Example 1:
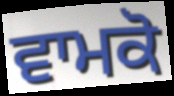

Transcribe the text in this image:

ਵਾਮਕੋ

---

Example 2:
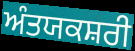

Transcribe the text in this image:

ਅੰਤਯਕਸ਼ਰੀ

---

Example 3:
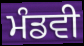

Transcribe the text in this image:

ਮੰਡਵੀ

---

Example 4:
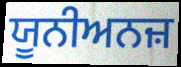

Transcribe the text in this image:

ਯੂਨੀਅਨਜ਼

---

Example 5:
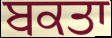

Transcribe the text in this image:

ਬਕਤਾ